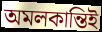
অমলকান্তিই